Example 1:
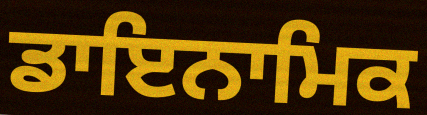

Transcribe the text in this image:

ਡਾਇਨਾਮਿਕ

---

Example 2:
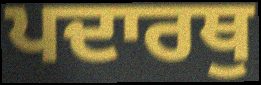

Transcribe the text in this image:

ਪਦਾਰਥੁ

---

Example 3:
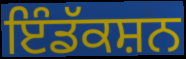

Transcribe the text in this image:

ਇੰਡੱਕਸ਼ਨ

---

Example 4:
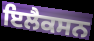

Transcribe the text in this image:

ਇਲੈਕਸਨ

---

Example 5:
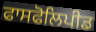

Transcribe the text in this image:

ਫਾਸਫੋਲਿਪੀਡ